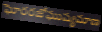
ఘోరరజోఘుష్యమాణ